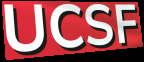
UCSF